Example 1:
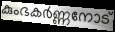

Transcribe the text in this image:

കുംഭകർണ്ണനോട്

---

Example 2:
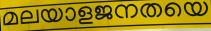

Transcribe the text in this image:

മലയാളജനതയെ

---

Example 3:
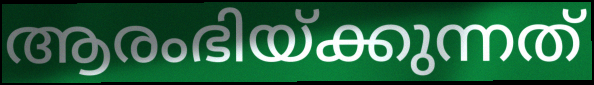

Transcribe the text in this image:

ആരംഭിയ്ക്കുന്നത്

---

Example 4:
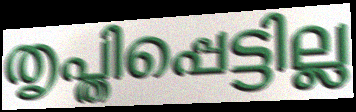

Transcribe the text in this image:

തൃപ്തിപ്പെട്ടില്ല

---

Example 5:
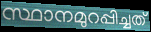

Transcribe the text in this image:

സ്ഥാനമുറപ്പിച്ചത്